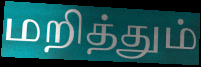
மறித்தும்